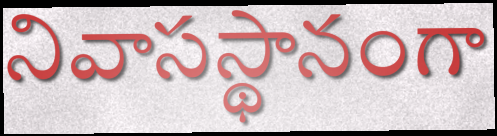
నివాసస్థానంగా